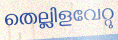
തെല്ലിളവേറ്റു